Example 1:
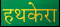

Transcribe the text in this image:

हथकेरा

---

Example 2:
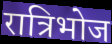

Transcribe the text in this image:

रात्रिभोज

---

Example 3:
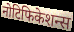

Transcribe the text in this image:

नोटिफिकेशन्स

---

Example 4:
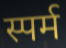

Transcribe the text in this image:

स्पर्म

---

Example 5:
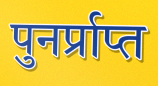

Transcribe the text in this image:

पुनर्प्राप्त